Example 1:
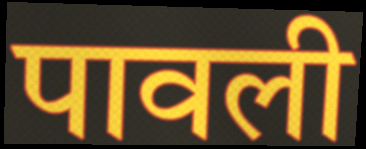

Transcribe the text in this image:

पावली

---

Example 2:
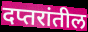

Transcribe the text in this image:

दप्तरांतील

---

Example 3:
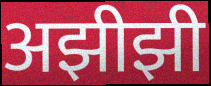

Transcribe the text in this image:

अझीझी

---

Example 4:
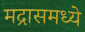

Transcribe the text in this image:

मद्रासमध्ये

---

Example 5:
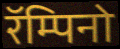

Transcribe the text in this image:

रॅम्पिनो